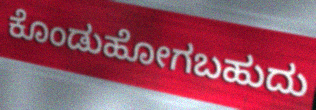
ಕೊಂಡುಹೋಗಬಹುದು